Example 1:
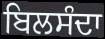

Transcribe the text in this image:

ਬਿਲਸੰਦਾ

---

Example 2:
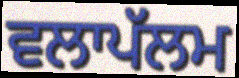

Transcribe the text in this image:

ਵਲਾਪੱਲਮ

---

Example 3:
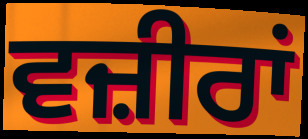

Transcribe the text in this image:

ਵਜ਼ੀਰਾਂ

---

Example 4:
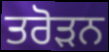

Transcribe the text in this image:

ਤਰੋੜਨ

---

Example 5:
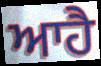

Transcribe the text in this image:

ਆਹੈ